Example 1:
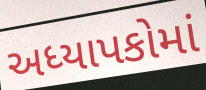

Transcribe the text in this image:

અધ્યાપકોમાં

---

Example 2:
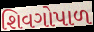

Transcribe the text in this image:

શિવગોપાળ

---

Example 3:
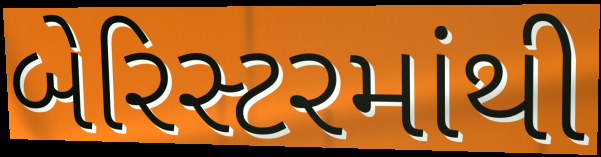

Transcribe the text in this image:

બેરિસ્ટરમાંથી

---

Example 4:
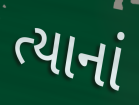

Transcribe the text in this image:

ત્યાનાં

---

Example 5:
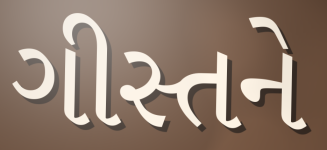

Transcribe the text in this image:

ગીસ્તને